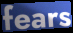
fears